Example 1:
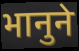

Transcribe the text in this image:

भानुने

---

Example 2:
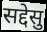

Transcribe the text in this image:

सद्देसु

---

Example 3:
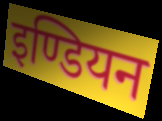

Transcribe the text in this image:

इण्डियन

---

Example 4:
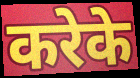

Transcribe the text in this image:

करेके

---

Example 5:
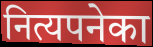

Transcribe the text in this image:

नित्यपनेका